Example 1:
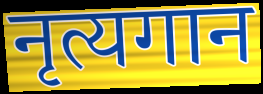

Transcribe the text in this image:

नृत्यगान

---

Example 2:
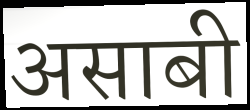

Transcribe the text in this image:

असाबी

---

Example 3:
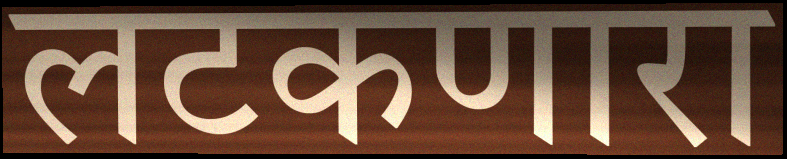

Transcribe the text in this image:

लटकणारा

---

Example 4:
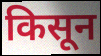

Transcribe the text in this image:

किसून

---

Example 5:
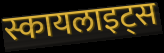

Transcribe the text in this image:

स्कायलाइट्स